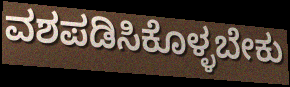
ವಶಪಡಿಸಿಕೊಳ್ಳಬೇಕು